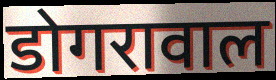
डोगरावाल